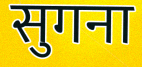
सुगना